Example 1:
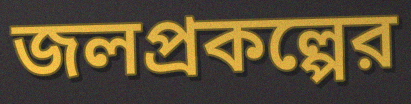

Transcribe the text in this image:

জলপ্রকল্পের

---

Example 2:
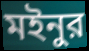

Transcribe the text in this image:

মইনুর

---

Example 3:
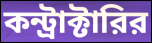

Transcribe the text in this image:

কন্ট্রাক্টারির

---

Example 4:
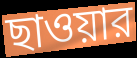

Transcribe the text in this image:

ছাওয়ার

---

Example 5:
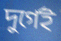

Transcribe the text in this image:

দুর্গেই